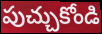
పుచ్చుకోండి